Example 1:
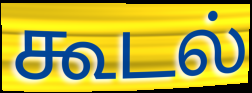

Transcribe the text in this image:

கூடல்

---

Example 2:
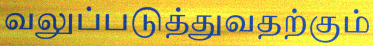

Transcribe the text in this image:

வலுப்படுத்துவதற்கும்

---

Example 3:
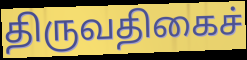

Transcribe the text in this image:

திருவதிகைச்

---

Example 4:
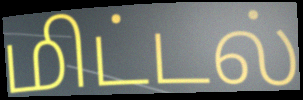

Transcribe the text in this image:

மிட்டல்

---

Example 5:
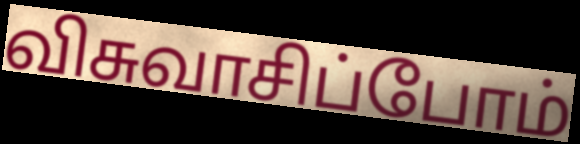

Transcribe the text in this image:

விசுவாசிப்போம்